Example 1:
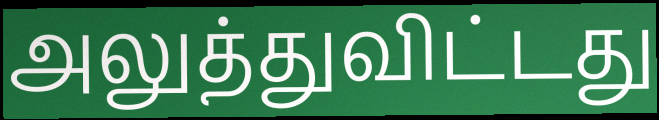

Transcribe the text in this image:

அலுத்துவிட்டது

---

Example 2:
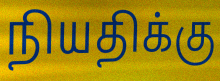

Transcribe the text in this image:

நியதிக்கு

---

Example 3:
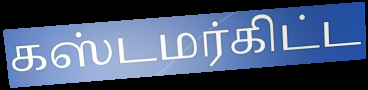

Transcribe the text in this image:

கஸ்டமர்கிட்ட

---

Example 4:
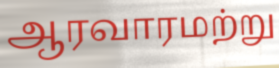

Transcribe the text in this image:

ஆரவாரமற்று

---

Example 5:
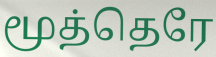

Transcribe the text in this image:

மூத்தெரே